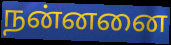
நன்னனை